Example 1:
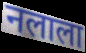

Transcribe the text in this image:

नलाला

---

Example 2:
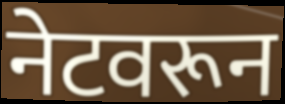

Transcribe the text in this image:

नेटवरून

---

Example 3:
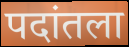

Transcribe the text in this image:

पदांतला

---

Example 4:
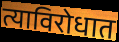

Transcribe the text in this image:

त्याविरोधात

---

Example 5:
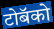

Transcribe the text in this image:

टोबॅको